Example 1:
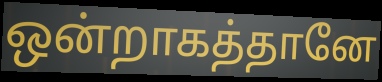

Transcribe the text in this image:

ஒன்றாகத்தானே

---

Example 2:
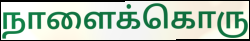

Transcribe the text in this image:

நாளைக்கொரு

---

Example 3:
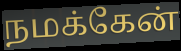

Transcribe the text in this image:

நமக்கேன்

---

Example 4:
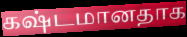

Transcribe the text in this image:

கஷ்டமானதாக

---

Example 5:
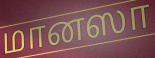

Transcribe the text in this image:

மானஸா